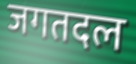
जगतदल